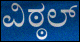
ವಿಠ್ಠಲ್